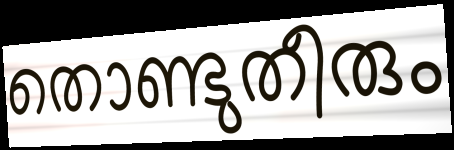
തൊണ്ടുതീരും